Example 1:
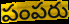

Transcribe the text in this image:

పంపరు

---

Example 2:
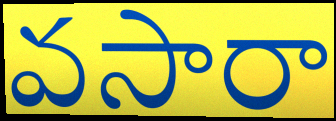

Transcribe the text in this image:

వసారా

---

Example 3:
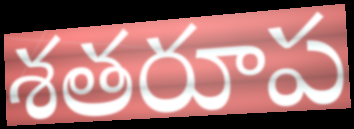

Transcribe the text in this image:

శతరూప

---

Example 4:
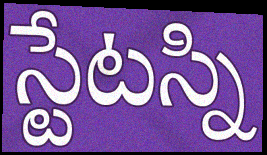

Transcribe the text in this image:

స్టేటస్ని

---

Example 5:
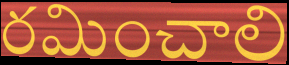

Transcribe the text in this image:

రమించాలి